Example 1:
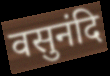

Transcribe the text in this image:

वसुनंदि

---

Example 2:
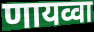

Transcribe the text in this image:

णायव्वा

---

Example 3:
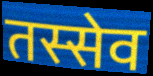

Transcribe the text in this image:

तस्सेव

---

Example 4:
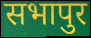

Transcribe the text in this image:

सभापुर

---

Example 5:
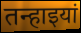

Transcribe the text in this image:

तन्हाइयां